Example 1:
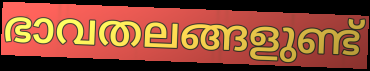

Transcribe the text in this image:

ഭാവതലങ്ങളുണ്ട്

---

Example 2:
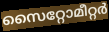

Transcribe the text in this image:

സൈറ്റോമീറ്റർ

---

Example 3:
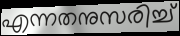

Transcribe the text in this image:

എന്നതനുസരിച്ച്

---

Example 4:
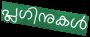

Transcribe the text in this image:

പ്ലഗിനുകൾ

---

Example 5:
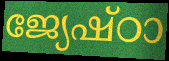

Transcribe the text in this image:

ജ്യേഷ്ഠാ